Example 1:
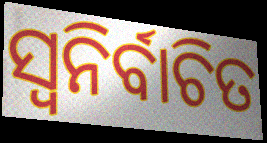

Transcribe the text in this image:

ସ୍ବନିର୍ବାଚିତ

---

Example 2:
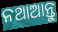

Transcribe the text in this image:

ନଥାଆନ୍ତୁ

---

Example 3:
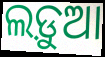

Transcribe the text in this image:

ଲଡ଼ୁଆ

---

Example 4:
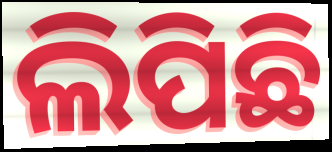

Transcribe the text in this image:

ଲିପିଛି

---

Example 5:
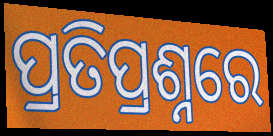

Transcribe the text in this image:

ପ୍ରତିପ୍ରଶ୍ନରେ